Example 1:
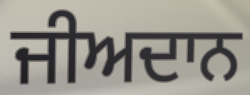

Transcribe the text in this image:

ਜੀਅਦਾਨ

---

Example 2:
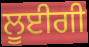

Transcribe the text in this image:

ਲੂਈਗੀ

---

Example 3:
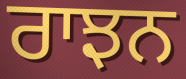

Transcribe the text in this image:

ਰਾਝਨ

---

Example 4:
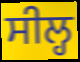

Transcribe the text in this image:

ਸੀਲ੍ਹ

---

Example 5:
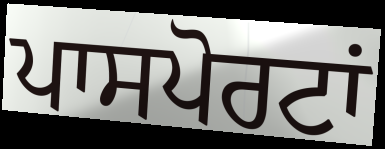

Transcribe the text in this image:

ਪਾਸਪੋਰਟਾਂ